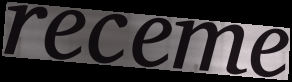
receme